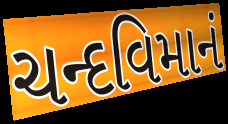
ચન્દવિમાનં